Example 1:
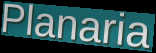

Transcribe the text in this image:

Planaria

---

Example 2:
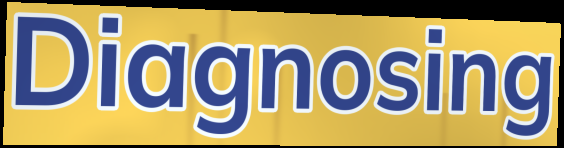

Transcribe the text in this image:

Diagnosing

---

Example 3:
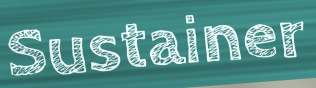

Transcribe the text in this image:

Sustainer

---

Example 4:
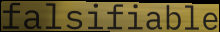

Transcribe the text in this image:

falsifiable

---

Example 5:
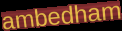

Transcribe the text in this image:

ambedham